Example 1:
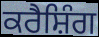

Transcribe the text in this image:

ਕਰੈਸ਼ਿੰਗ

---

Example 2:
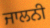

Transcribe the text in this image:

ਜਾਲਨੀ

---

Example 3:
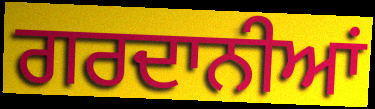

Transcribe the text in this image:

ਗਰਦਾਨੀਆਂ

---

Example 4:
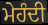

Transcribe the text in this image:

ਮੇਹੰਦੀ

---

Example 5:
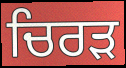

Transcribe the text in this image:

ਚਿਰੜ